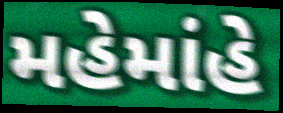
મહેમાંહે